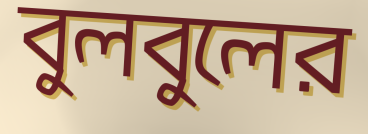
বুলবুলের